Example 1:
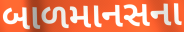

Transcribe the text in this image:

બાળમાનસના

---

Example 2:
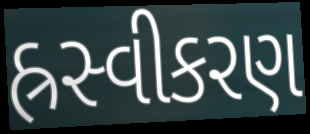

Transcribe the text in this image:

હ્રસ્વીકરણ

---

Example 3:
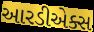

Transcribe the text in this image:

આરડીએક્સ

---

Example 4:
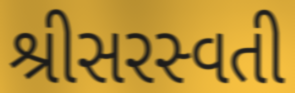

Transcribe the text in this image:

શ્રીસરસ્વતી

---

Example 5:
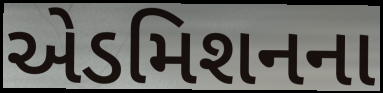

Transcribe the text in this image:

એડમિશનના